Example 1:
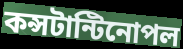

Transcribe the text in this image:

কন্সটান্টিনোপল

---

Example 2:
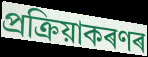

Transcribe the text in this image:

প্ৰক্ৰিয়াকৰণৰ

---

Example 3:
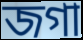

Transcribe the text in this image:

জগা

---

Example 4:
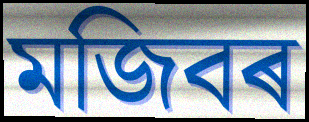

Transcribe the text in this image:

মজিবৰ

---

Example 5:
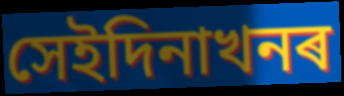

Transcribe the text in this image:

সেইদিনাখনৰ